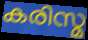
കരിസ്മ